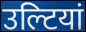
उल्‍टियां